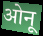
ओनू